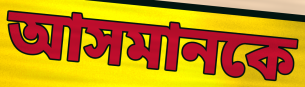
আসমানকে